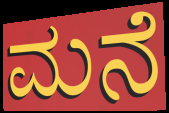
ಮನೆ